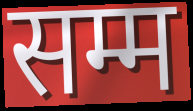
सम्म